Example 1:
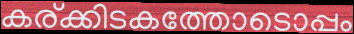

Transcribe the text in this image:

കര്ക്കിടകത്തോടൊപ്പം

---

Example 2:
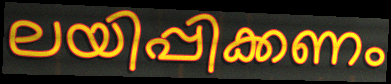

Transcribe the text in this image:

ലയിപ്പിക്കണം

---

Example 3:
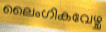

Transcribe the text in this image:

ലൈംഗികവേഴ്ച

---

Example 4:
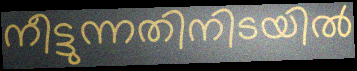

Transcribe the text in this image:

നീട്ടുന്നതിനിടയിൽ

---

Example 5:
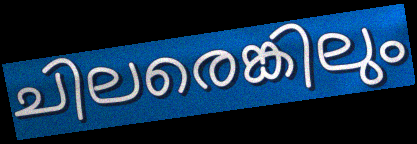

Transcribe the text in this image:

ചിലരെങ്കിലും